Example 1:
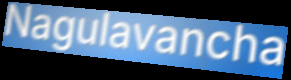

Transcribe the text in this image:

Nagulavancha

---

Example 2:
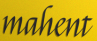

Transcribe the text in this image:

mahent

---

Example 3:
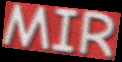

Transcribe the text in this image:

MIR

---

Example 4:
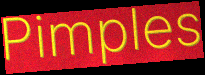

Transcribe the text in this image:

Pimples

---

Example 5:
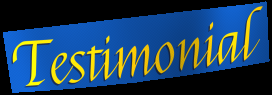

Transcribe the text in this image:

Testimonial